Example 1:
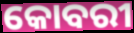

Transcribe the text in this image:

କୋବରୀ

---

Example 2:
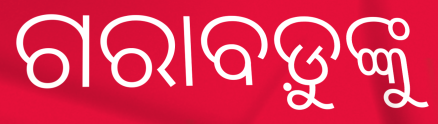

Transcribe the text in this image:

ଗରାବଡ଼ୁଙ୍କୁ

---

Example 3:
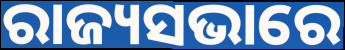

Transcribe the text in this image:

ରାଜ୍ୟସଭାରେ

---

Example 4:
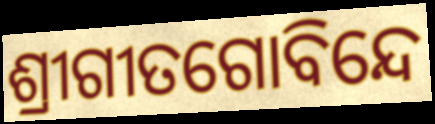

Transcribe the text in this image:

ଶ୍ରୀଗୀତଗୋବିନ୍ଦେ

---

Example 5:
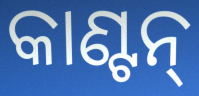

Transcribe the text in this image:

କାଣ୍ଟନ୍